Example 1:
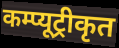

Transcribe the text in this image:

कम्प्यूट्रीकृत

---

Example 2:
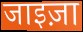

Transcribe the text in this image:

जाइज़ा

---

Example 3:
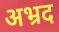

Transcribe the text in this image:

अभ्रद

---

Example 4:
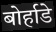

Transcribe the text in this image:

बोर्हाडे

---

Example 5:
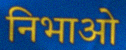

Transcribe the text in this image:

निभाओ